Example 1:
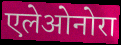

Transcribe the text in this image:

एलेओनोरा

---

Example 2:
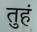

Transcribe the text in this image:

तुहं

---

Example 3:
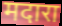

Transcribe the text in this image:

मदारा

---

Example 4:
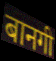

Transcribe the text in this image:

बानगी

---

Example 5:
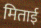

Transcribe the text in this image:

मिताई